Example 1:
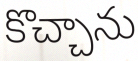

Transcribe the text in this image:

కొచ్చాను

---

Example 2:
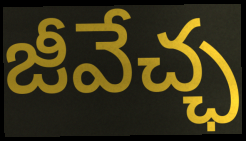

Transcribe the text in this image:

జీవేచ్ఛ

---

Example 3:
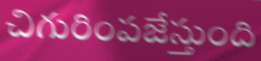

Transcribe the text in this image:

చిగురింపజేస్తుంది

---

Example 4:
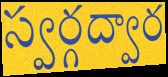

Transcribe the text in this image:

స్వర్గద్వార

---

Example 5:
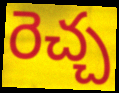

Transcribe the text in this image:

రెచ్చ